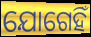
ଯୋଗେହିଁ